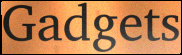
Gadgets